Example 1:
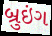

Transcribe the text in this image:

બ્રુઇંગ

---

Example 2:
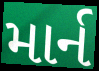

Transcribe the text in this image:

માર્ન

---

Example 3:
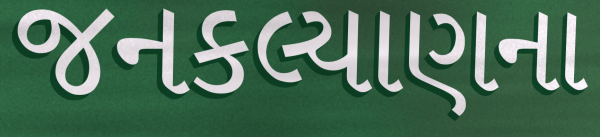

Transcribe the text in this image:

જનકલ્યાણના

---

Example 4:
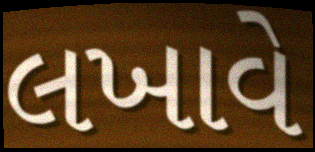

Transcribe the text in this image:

લખાવે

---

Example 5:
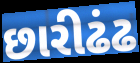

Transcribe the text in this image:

છારીઢંઢ